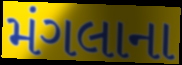
મંગલાના